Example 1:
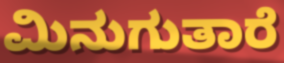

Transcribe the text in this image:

ಮಿನುಗುತಾರೆ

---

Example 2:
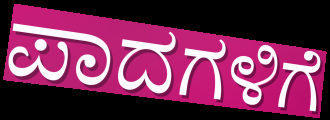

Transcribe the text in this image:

ಪಾದಗಳಿಗೆ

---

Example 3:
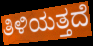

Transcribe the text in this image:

ತಿಳಿಯತ್ತದೆ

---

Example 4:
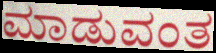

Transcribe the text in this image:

ಮಾಡುವಂತ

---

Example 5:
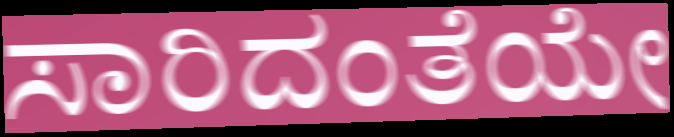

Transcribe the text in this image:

ಸಾರಿದಂತೆಯೇ